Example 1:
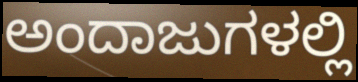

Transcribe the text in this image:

ಅಂದಾಜುಗಳಲ್ಲಿ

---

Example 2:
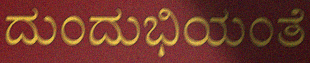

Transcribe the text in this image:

ದುಂದುಭಿಯಂತೆ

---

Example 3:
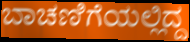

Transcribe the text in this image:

ಬಾಚಣಿಗೆಯಲ್ಲಿದ್ದ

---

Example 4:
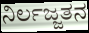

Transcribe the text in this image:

ನಿರ್ಲಜ್ಜತನ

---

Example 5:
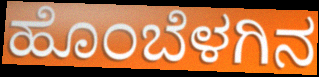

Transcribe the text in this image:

ಹೊಂಬೆಳಗಿನ